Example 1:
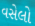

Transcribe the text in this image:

વસેલો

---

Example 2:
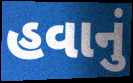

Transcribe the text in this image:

હવાનું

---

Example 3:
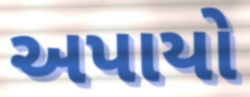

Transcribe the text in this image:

અપાયો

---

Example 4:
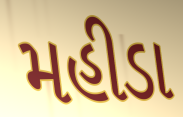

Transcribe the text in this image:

મહીડા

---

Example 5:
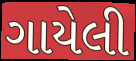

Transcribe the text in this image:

ગાયેલી